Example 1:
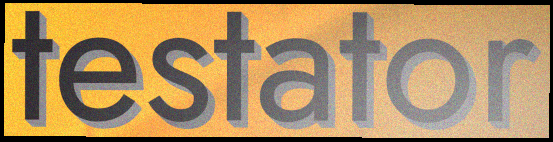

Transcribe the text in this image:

testator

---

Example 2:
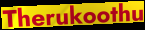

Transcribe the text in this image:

Therukoothu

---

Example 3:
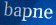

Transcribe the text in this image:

bapne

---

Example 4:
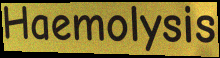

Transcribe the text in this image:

Haemolysis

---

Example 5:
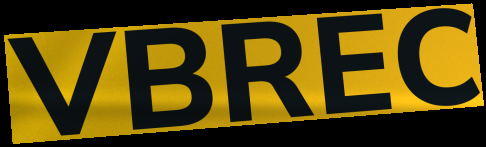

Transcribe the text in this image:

VBREC